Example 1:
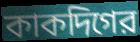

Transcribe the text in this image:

কাকদিগের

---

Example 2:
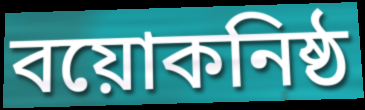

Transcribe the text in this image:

বয়োকনিষ্ঠ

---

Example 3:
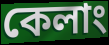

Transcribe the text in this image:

কেলাং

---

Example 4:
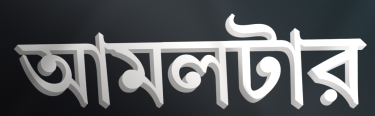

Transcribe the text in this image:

আমলটার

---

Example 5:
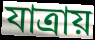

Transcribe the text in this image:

যাত্রায়